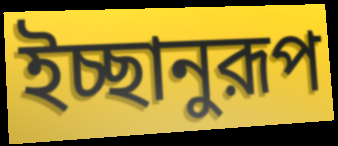
ইচ্ছানুরূপ